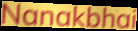
Nanakbhai